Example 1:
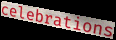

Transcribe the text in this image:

celebrations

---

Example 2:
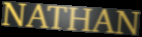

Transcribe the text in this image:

NATHAN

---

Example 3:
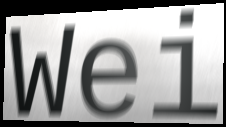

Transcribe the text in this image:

Wei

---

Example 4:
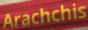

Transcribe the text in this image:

Arachchis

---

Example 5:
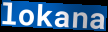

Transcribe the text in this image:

lokana